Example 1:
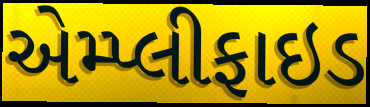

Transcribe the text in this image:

એમ્પ્લીફાઇડ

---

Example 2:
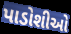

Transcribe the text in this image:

પાડોશીઓ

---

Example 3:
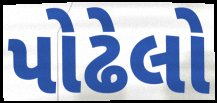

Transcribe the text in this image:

પોઢેલો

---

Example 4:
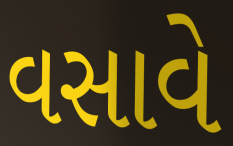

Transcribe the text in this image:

વસાવે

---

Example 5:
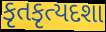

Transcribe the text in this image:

કૃતકૃત્યદશા